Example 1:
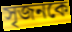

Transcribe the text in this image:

সৃজনকে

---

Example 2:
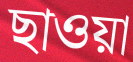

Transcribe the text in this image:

ছাওয়া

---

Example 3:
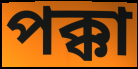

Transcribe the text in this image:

পক্কা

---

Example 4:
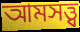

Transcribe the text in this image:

আমসত্ত্ব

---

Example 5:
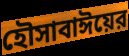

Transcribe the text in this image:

হৌসাবাঈয়ের